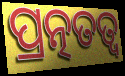
ପ୍ରତ୍ନତତ୍ୱ